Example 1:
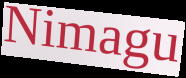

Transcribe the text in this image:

Nimagu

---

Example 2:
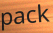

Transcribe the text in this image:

pack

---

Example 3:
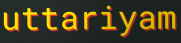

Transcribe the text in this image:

uttariyam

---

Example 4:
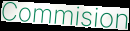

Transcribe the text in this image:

Commision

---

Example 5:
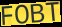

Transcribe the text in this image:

FOBT